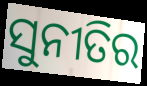
ସୁନୀତିର